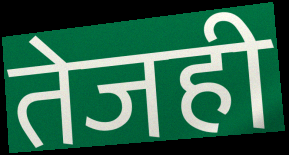
तेजही